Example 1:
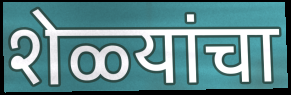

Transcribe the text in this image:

शेळ्यांचा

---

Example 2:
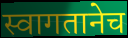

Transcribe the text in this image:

स्वागतानेच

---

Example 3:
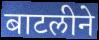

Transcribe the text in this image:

बाटलीने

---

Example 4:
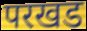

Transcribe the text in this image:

परखड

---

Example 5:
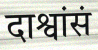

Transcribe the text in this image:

दाश्वांसं